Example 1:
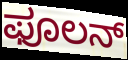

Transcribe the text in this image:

ಫೂಲನ್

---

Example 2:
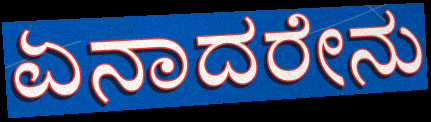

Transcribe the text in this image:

ಏನಾದರೇನು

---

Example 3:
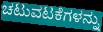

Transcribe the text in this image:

ಚಟುವಟಕೆಗಳನ್ನು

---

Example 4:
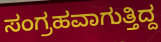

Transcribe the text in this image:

ಸಂಗ್ರಹವಾಗುತ್ತಿದ್ದ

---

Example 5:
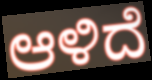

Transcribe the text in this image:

ಆಳಿದೆ